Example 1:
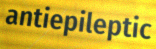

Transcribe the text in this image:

antiepileptic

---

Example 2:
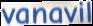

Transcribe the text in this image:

vanavil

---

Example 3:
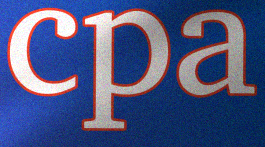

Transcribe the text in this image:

cpa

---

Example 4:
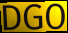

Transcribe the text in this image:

DGO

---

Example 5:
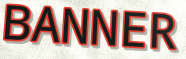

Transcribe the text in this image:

BANNER